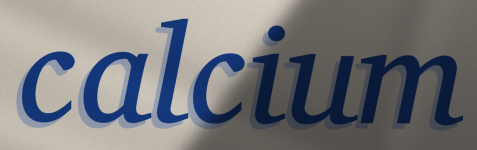
calcium